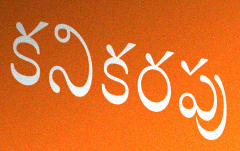
కనికరపు